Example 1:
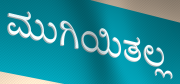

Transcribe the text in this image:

ಮುಗಿಯಿತಲ್ಲ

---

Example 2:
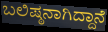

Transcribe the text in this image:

ಬಲಿಷ್ಠನಾಗಿದ್ದಾನೆ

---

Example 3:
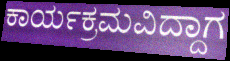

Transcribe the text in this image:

ಕಾರ್ಯಕ್ರಮವಿದ್ದಾಗ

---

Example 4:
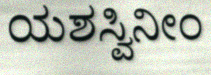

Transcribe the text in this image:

ಯಶಸ್ವಿನೀಂ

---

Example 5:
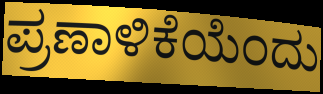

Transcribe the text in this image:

ಪ್ರಣಾಳಿಕೆಯೆಂದು